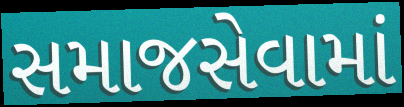
સમાજસેવામાં